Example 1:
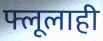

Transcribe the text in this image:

फ्लूलाही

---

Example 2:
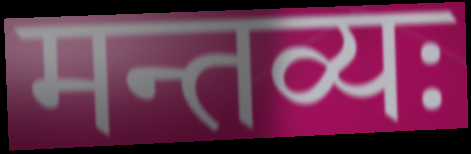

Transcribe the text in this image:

मन्तव्यः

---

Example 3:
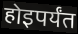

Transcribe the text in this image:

होइपर्यंत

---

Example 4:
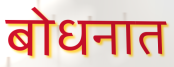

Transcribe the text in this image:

बोधनात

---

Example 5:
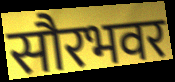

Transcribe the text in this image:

सौरभवर